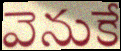
వెనుకే